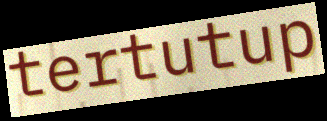
tertutup